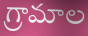
గ్రామాల